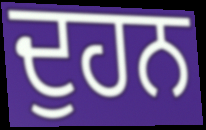
ਦੁਹਨ